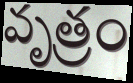
వృత్రం